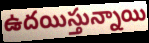
ఉదయిస్తున్నాయి